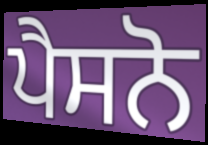
ਪੈਸਨੋ